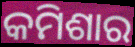
କମିଶାର